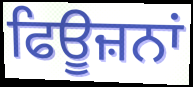
ਫਿਊਜ਼ਨਾਂ